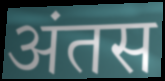
अंतस